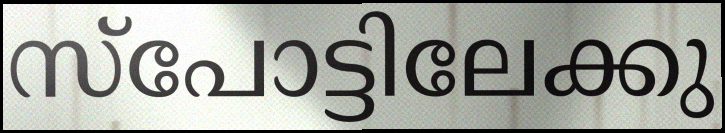
സ്പോട്ടിലേക്കു